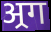
अ्रग